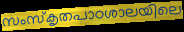
സംസ്കൃതപാഠശാലയിലെ